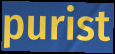
purist